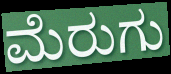
ಮೆರುಗು